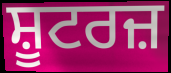
ਸ਼ੂਟਰਜ਼